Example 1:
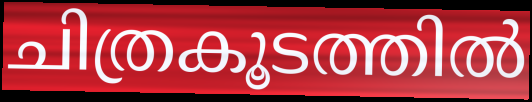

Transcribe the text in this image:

ചിത്രകൂടത്തിൽ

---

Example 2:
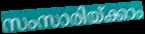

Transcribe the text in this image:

സംസാരിയ്ക്കാം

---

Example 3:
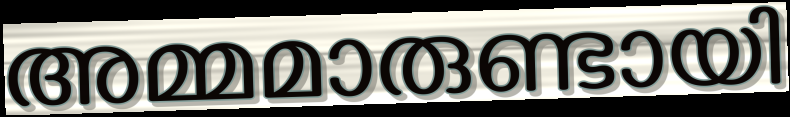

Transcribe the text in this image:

അമ്മമാരുണ്ടായി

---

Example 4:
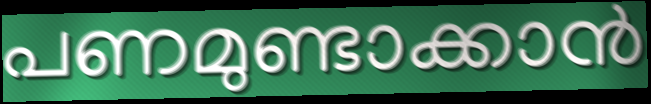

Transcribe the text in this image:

പണമുണ്ടാക്കാൻ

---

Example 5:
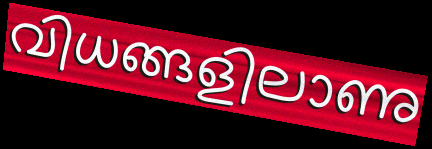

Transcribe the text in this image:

വിധങ്ങളിലാണു